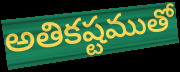
అతికష్టముతో